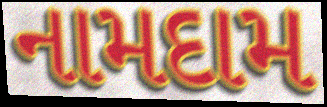
નામદામ